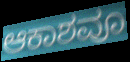
ಆಕಾಶವೂ